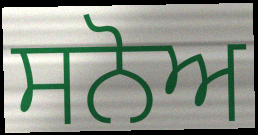
ਸਨੋਅ